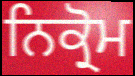
ਨਿਕ੍ਰੋਮ